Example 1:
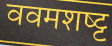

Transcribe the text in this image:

ववमशष्ट्ट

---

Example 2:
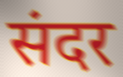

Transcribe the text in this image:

संदर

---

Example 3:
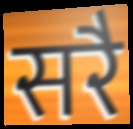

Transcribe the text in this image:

सरै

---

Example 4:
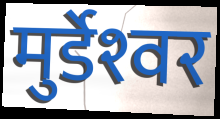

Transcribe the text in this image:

मुर्डेश्वर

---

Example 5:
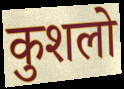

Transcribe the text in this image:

कुशलो